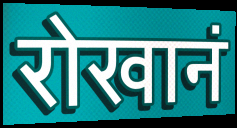
रोखानं